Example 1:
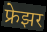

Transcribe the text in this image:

फ्रेझर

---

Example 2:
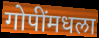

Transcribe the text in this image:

गोपींमधला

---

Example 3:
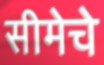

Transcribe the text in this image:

सीमेचे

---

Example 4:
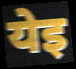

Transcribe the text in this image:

येइ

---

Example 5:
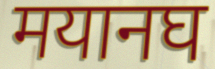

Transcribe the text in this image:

मयानघ